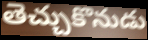
తెచ్చుకొనుడు